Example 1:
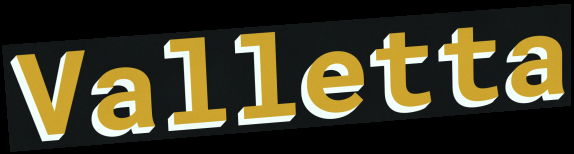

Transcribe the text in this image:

Valletta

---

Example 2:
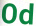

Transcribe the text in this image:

Od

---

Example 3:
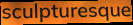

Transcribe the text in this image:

sculpturesque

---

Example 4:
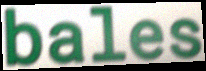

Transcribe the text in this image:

bales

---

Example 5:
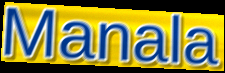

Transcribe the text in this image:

Manala